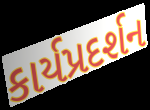
કાર્યપ્રદર્શન